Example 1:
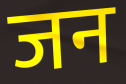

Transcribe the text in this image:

जन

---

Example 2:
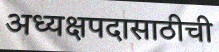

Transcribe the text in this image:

अध्यक्षपदासाठीची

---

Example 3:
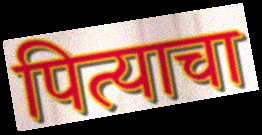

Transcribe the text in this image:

पित्याचा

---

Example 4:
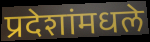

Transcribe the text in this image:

प्रदेशांमधले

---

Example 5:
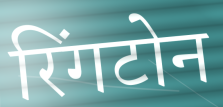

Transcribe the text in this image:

रिंगटोन